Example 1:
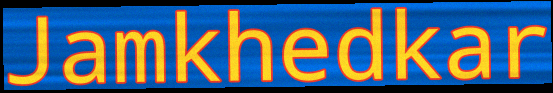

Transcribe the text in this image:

Jamkhedkar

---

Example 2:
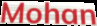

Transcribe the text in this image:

Mohan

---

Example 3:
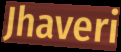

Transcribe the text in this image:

Jhaveri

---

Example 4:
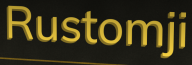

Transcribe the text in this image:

Rustomji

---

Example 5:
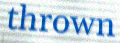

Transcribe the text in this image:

thrown